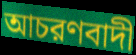
আচরণবাদী